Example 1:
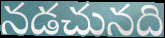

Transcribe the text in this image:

నడచునది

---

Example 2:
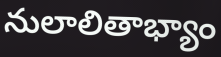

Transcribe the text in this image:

నులాలితాభ్యాం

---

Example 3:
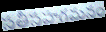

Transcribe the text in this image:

సతీసహగమనం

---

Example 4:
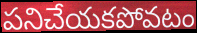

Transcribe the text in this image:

పనిచేయకపోవటం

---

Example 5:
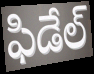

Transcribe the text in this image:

ఫిడేల్